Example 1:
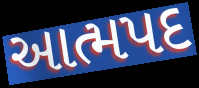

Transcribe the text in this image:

આત્મપદ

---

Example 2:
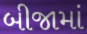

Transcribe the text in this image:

બીજામાં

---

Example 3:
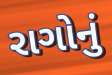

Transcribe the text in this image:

રાગોનું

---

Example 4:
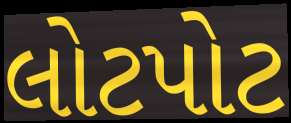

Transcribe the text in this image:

લોટપોટ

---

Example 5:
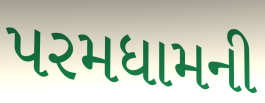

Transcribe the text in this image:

પરમધામની